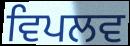
ਵਿਪਲਵ